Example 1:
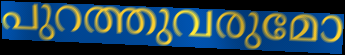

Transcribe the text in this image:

പുറത്തുവരുമോ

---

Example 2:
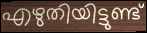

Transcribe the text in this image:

എഴുതിയിട്ടുണ്ട്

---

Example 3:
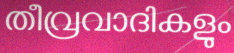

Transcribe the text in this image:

തീവ്രവാദികളും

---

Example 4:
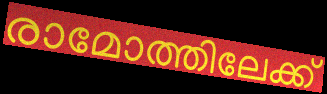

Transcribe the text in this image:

രാമോത്തിലേക്ക്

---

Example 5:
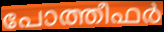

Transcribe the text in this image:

പോത്തീഫർ